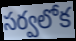
సర్వలోక